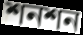
শনশন